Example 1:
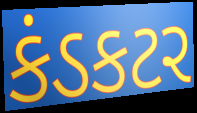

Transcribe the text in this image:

કંડકટર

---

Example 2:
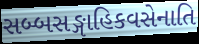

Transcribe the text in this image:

સબ્બસઙ્ગાહિકવસેનાતિ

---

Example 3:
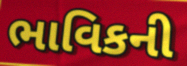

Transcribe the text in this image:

ભાવિકની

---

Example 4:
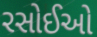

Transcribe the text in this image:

રસોઈઓ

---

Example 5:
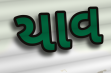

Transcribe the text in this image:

યાવ